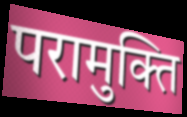
परामुक्ति